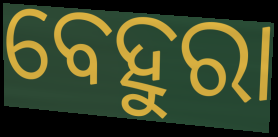
ବେହୁରା